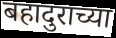
बहादुराच्या